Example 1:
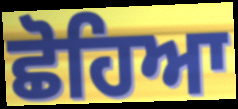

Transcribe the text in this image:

ਛੋਹਿਆ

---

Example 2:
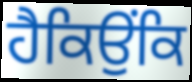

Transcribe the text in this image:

ਹੈਕਿਉਂਕਿ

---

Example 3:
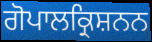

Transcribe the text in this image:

ਗੋਪਾਲਕ੍ਰਿਸ਼ਨਨ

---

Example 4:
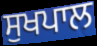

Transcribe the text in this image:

ਸੁਖਪਾਲ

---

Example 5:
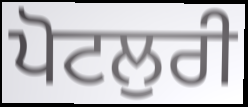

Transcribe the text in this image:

ਪੋਟਲੁਰੀ